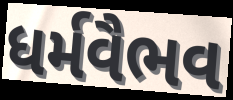
ધર્મવૈભવ